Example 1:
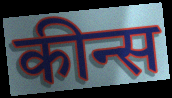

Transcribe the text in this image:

कीन्स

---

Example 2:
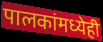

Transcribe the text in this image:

पालकांमध्येही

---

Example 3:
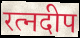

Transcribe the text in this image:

रत्नदीप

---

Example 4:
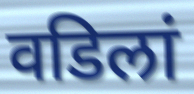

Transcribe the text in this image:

वडिलां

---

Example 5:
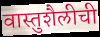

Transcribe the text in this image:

वास्तुशैलीची